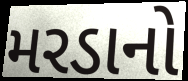
મરડાનો